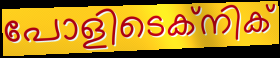
പോളിടെക്നിക്